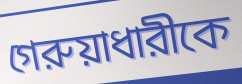
গেরুয়াধারীকে